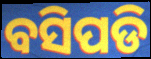
ବସିପଡି